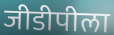
जीडीपीला